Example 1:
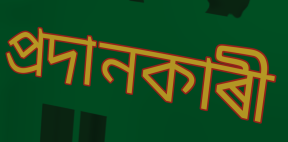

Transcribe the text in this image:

প্ৰদানকাৰী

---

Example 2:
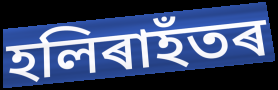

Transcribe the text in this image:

হলিৰাহঁতৰ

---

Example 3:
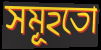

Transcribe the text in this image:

সমূহতো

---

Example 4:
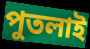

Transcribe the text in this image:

পুতলাই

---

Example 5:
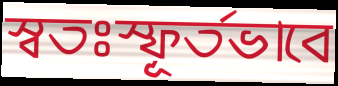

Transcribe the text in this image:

স্বতঃস্ফূৰ্তভাবে